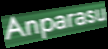
Anparasu